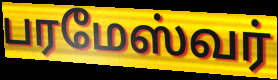
பரமேஸ்வர்